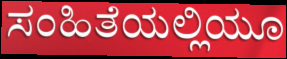
ಸಂಹಿತೆಯಲ್ಲಿಯೂ